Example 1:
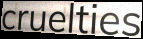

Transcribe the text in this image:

cruelties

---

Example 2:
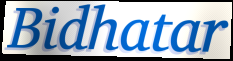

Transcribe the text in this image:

Bidhatar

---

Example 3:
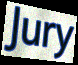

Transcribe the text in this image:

Jury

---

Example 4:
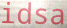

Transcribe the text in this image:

idsa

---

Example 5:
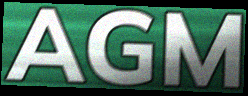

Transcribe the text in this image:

AGM